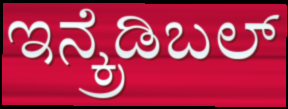
ಇನ್ಕ್ರೆಡಿಬಲ್